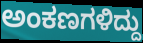
ಅಂಕಣಗಳಿದ್ದು